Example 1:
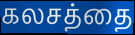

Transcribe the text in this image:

கலசத்தை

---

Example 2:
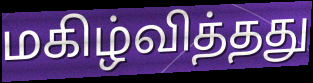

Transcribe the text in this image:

மகிழ்வித்தது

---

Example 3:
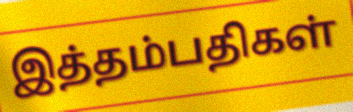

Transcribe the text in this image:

இத்தம்பதிகள்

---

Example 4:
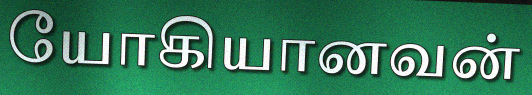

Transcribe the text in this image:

யோகியானவன்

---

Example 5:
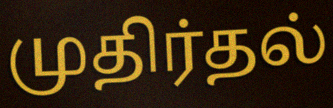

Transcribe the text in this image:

முதிர்தல்